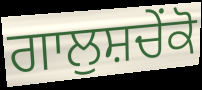
ਗਾਲੁਸ਼ਚੇਂਕੋ